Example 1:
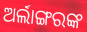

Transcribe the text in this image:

ଅର୍ଲାଙ୍ଗରଙ୍କ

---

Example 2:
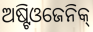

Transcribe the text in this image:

ଅଷ୍ଟିଓଜେନିକ୍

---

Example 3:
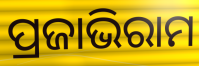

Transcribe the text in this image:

ପ୍ରଜାଭିରାମ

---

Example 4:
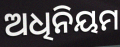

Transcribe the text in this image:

ଅଧିନିୟମ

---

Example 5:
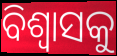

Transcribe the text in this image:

ବିଶ୍ୱାସକୁ